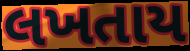
લખતાય